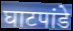
घाटपांडे